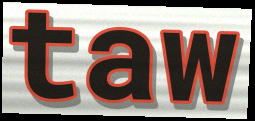
taw